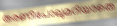
തരണിപോലുമറിയാതെ